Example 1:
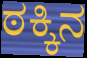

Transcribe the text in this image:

ಠಕ್ಕಿನ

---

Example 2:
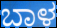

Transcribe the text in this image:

ಬಾಳ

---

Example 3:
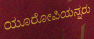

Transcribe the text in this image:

ಯೂರೋಪಿಯನ್ನರು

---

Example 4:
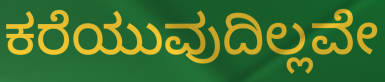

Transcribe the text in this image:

ಕರೆಯುವುದಿಲ್ಲವೇ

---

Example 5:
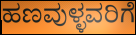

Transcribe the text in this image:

ಹಣವುಳ್ಳವರಿಗೆ